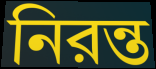
নিরন্ত